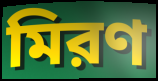
মিরণ